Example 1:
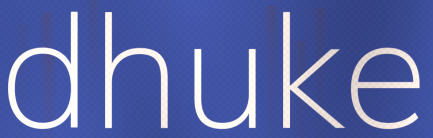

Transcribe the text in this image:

dhuke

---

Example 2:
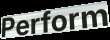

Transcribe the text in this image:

Perform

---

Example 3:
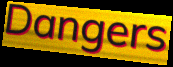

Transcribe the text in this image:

Dangers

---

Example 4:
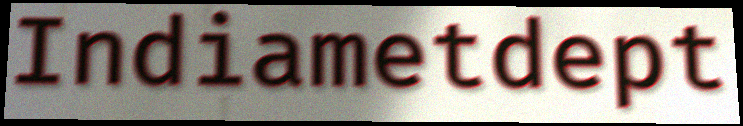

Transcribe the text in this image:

Indiametdept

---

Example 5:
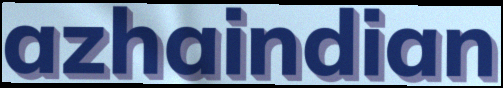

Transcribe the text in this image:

azhaindian